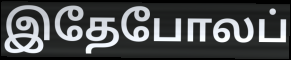
இதேபோலப்